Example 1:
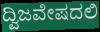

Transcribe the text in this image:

ದ್ವಿಜವೇಷದಲಿ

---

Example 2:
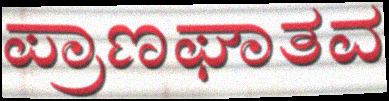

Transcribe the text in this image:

ಪ್ರಾಣಘಾತವ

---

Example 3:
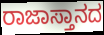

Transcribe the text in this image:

ರಾಜಾಸ್ತಾನದ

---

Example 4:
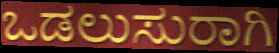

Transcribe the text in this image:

ಒಡಲುಸುರಾಗಿ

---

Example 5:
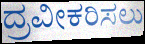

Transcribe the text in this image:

ದ್ರವೀಕರಿಸಲು